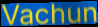
Vachun